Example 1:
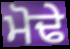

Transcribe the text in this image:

ਮੋਢੇ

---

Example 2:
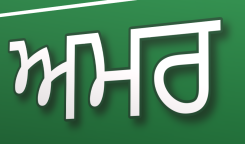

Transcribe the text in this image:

ਅਮਰ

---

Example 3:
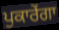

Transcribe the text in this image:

ਪੁਕਾਰੇਂਗਾ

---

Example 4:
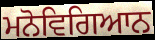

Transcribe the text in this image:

ਮਨੋਵਿਗਿਆਨ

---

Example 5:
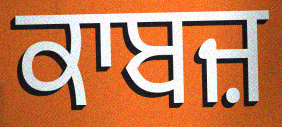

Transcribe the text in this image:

ਕਾਬਜ਼